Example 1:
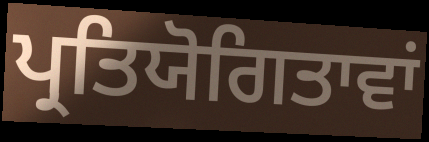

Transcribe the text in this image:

ਪ੍ਰਤਿਯੋਗਿਤਾਵਾਂ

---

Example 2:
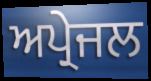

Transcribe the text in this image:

ਅਪ੍ਰੇਜਲ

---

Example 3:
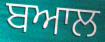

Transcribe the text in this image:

ਬਆਲ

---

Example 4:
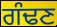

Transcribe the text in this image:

ਗੰਢਣ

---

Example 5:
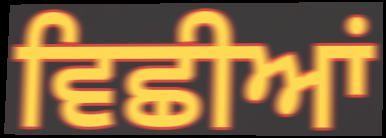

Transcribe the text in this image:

ਵਿਛੀਆਂ